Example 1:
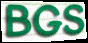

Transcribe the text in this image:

BGS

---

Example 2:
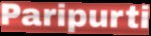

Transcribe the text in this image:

Paripurti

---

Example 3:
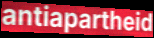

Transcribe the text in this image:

antiapartheid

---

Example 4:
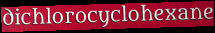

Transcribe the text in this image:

dichlorocyclohexane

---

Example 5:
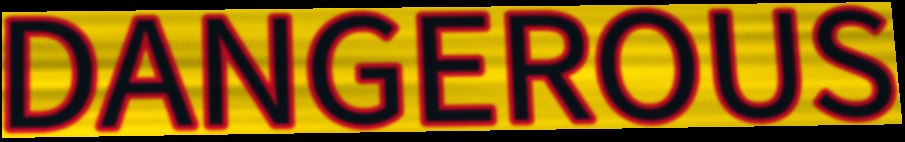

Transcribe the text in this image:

DANGEROUS